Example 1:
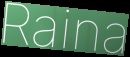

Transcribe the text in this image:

Raina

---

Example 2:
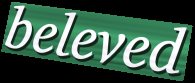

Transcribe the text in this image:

beleved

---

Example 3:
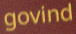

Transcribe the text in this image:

govind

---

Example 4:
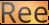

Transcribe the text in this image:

Ree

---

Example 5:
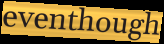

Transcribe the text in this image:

eventhough